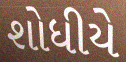
શોધીયે